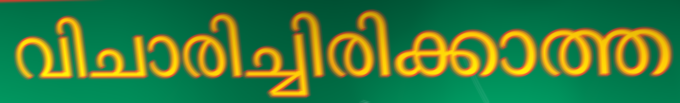
വിചാരിച്ചിരിക്കാത്ത